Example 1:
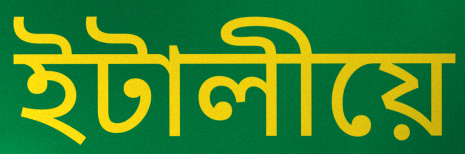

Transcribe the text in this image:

ইটালীয়ে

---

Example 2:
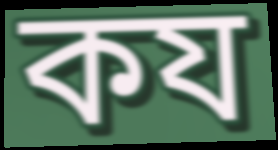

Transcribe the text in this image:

কয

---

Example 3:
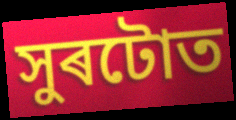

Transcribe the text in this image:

সুৰটোত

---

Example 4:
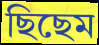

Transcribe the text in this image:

ছিছেম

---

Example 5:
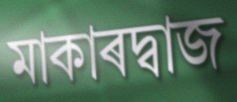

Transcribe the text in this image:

মাকাৰদ্বাজ